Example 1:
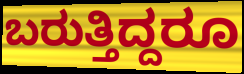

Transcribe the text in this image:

ಬರುತ್ತಿದ್ದರೂ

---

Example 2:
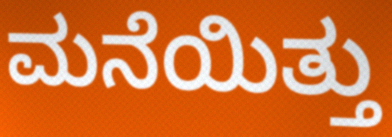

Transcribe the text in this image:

ಮನೆಯಿತ್ತು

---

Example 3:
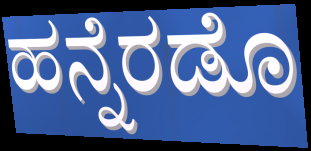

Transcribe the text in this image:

ಹನ್ನೆರಡೊ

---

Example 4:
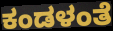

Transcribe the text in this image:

ಕಂಡಳಂತೆ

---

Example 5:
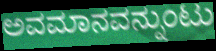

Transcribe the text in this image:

ಅವಮಾನವನ್ನುಂಟು